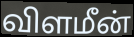
விளமீன்